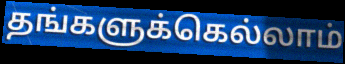
தங்களுக்கெல்லாம்